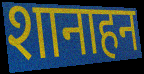
शानाहन